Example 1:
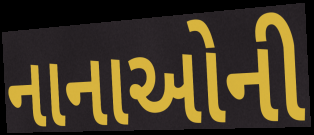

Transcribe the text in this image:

નાનાઓની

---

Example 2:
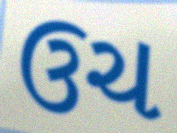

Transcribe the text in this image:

ઉચ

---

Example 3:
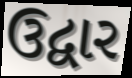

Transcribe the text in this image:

ઉદ્વાર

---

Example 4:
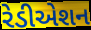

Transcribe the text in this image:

રેડીએશન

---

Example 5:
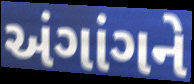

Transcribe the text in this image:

અંગાંગને